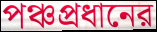
পঞ্চপ্রধানের